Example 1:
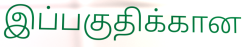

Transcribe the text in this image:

இப்பகுதிக்கான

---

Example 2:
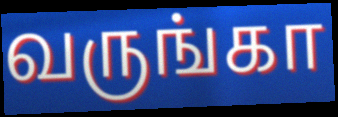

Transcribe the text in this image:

வருங்கா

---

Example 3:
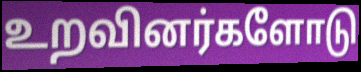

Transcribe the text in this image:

உறவினர்களோடு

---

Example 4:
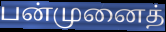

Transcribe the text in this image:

பன்முனைத்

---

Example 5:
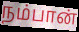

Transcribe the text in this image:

நம்பான்